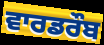
ਵਾਰਡਰੌਬ